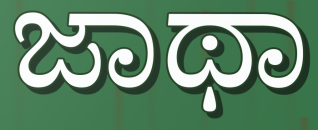
ಜಾಥಾ